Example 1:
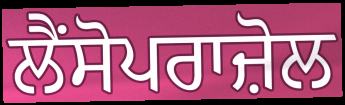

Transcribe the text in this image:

ਲੈਂਸੋਪਰਾਜ਼ੋਲ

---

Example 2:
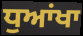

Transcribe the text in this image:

ਧੁਆਂਖਾ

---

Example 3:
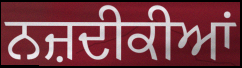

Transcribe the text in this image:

ਨਜ਼ਦੀਕੀਆਂ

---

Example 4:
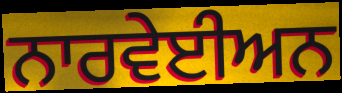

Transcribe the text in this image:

ਨਾਰਵੇਈਅਨ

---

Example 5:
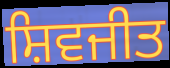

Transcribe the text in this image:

ਸ਼ਿਵਜੀਤ